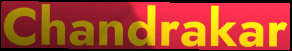
Chandrakar